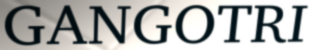
GANGOTRI